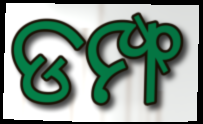
ଡମ୍ଫ